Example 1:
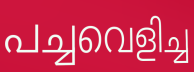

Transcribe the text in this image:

പച്ചവെളിച്ച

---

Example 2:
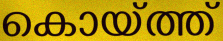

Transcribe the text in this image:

കൊയ്ത്ത്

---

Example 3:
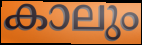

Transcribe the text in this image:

കാലും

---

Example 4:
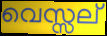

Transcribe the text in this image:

വെസ്സല്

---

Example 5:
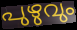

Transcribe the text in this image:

പുഴുവും